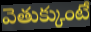
వెతుక్కుంటే